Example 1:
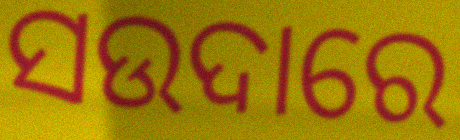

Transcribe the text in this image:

ସଉଦାରେ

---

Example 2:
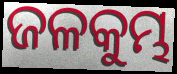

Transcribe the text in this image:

ଜଳକୁମ୍ଭ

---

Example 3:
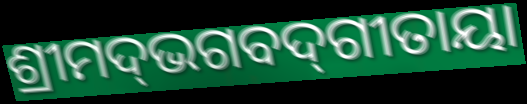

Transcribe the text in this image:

ଶ୍ରୀମଦ୍‌ଭଗବଦ୍‌ଗୀତାୟା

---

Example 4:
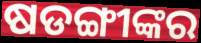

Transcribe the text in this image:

ଷଡଙ୍ଗୀଙ୍କର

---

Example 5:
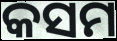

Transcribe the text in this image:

କସମ